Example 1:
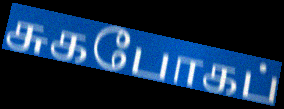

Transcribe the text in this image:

சுகபோகப்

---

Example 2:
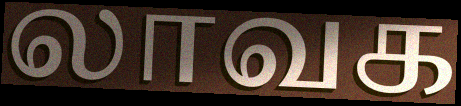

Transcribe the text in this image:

லாவக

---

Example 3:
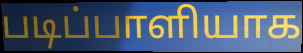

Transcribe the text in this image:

படிப்பாளியாக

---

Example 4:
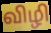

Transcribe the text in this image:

விழி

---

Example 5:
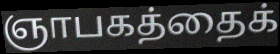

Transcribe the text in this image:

ஞாபகத்தைக்